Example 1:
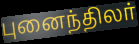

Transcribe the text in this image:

புனைந்திலர்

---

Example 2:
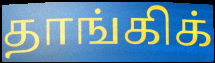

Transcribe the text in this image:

தாங்கிக்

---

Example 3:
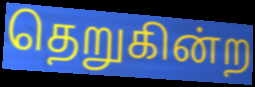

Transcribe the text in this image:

தெறுகின்ற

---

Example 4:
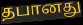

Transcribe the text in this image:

தபானது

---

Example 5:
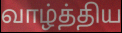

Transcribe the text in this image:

வாழ்த்திய